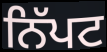
ਨਿੱਪਟ